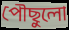
পৌছুলো